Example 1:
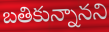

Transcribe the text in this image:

బతికున్నానని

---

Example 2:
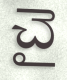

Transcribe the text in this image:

చై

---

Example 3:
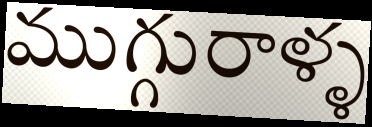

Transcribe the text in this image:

ముగ్గురాళ్ళ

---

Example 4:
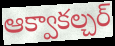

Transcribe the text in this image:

ఆక్వాకల్చర్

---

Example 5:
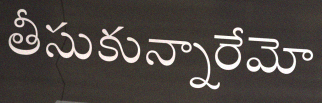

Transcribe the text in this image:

తీసుకున్నారేమో